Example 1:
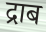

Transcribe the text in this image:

द्राब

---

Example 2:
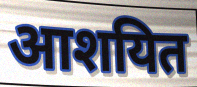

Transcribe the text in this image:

आशयित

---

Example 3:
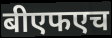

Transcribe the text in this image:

बीएफएच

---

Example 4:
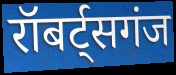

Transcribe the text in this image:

रॉबर्ट्सगंज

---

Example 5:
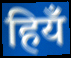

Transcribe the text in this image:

हियँ